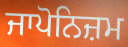
ਜਾਪੋਨਿਜ਼ਮ